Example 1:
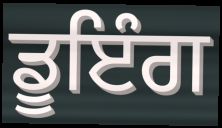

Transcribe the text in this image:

ਡੂਇੰਗ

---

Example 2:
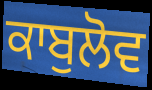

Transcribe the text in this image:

ਕਾਬੁਲੋਵ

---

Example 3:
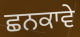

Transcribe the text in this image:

ਛਨਕਾਵੇ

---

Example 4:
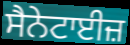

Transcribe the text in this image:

ਸੈਨੇਟਾਈਜ਼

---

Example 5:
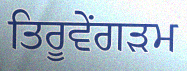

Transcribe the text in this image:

ਤਿਰੂਵੇਂਗੜਮ